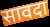
सावदा